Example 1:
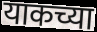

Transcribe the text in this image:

याकच्या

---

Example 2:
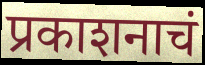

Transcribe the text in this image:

प्रकाशनाचं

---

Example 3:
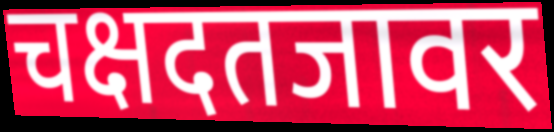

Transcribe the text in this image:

चक्षदतजावर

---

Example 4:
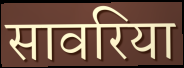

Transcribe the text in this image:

सावरिया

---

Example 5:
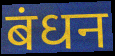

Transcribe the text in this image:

बंधन